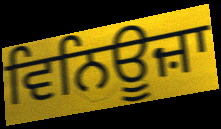
ਵਿਨਿਊਜ਼ਾ